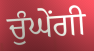
ਚੁੰਘੇਂਗੀ